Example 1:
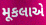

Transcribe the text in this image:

મૂકલાએ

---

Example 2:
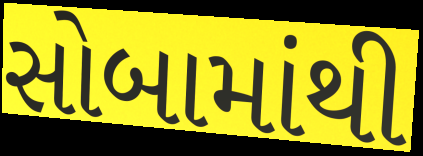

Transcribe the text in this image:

સોબામાંથી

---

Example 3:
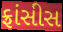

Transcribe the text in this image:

ફ્રાંસીસ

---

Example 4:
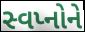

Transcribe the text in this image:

સ્વપ્નોને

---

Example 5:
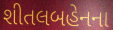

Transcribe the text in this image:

શીતલબહેનના